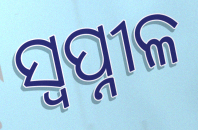
ସ୍ୱପ୍ନୀଳ